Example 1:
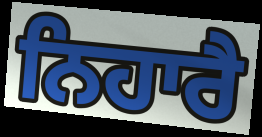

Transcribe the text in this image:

ਨਿਹਾਰੈ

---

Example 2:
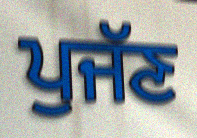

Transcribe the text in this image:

ਪੁਜੱਣ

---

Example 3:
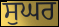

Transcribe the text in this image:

ਸੁਘਰ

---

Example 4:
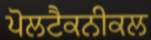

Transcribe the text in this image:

ਪੋਲਟੈਕਨੀਕਲ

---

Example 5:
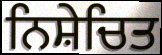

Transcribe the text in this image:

ਨਿਸ਼ੇਚਿਤ